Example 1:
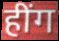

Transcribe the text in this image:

हींग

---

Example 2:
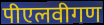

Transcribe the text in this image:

पीएलवीगण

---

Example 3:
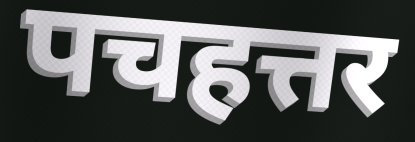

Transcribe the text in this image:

पचहत्तर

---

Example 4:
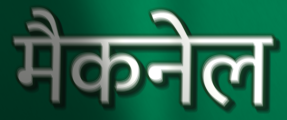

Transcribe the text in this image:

मैकनेल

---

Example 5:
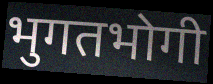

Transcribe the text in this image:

भुगतभोगी